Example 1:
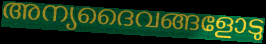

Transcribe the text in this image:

അന്യദൈവങ്ങളോടു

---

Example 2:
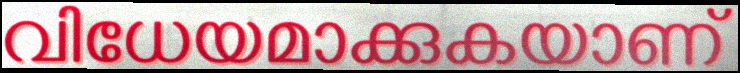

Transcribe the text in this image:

വിധേയമാക്കുകയാണ്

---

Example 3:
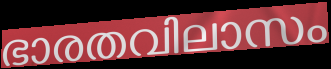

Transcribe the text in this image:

ഭാരതവിലാസം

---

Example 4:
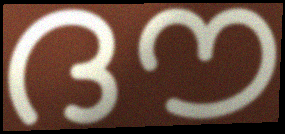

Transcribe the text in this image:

ദൗ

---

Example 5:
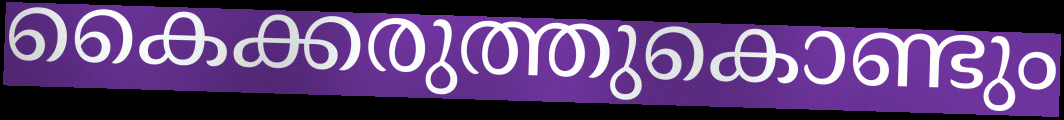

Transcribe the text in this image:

കൈക്കരുത്തുകൊണ്ടും